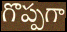
గొప్పగా